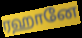
ரஹானே